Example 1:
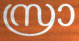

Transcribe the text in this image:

സ്രാ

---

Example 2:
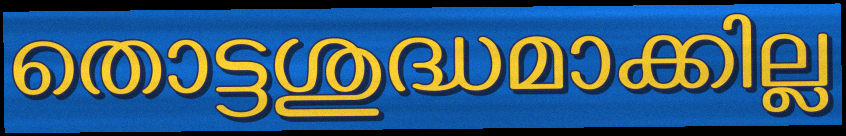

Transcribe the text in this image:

തൊട്ടശുദ്ധമാക്കില്ല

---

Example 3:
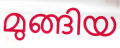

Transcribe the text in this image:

മുങ്ങിയ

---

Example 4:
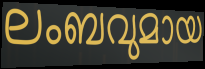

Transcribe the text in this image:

ലംബവുമായ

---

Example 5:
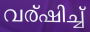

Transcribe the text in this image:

വര്ഷിച്ച്